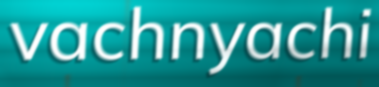
vachnyachi